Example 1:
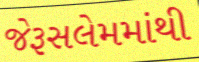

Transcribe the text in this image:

જેરૂસલેમમાંથી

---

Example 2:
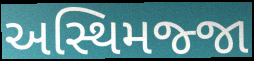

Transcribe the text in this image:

અસ્થિમજ્જા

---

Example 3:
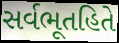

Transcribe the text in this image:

સર્વભૂતહિતે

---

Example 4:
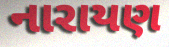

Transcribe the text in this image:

નારાયણ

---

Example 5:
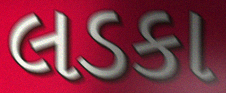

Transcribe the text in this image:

લડકા